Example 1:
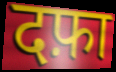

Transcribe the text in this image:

दफ़ा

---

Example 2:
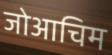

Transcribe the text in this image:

जोआचिम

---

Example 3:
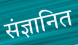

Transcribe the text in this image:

संज्ञानित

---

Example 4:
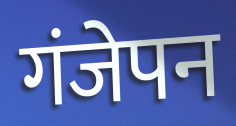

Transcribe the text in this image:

गंजेपन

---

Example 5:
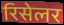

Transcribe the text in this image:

रिसेलर